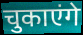
चुकाएंगे